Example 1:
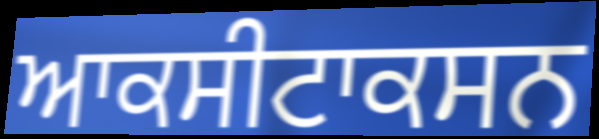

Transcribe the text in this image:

ਆਕਸੀਟਾਕਸਨ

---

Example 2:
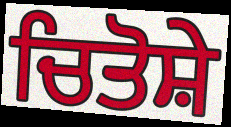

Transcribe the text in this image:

ਚਿਤੋਸ਼ੇ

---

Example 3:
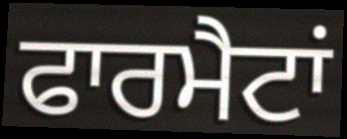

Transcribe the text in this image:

ਫਾਰਮੈਟਾਂ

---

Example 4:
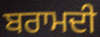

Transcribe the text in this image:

ਬਰਾਮਦੀ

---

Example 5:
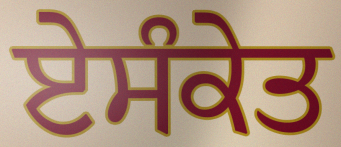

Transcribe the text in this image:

ਏਸੰਕੇਤ